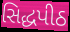
સિદ્ધપીઠ